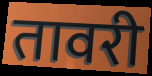
तावरी